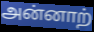
அன்னாற்